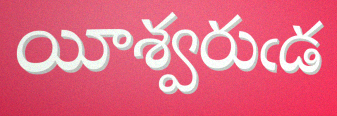
యీశ్వరుఁడ